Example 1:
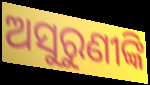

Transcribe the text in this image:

ଅସୁରୁଣୀଙ୍କି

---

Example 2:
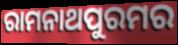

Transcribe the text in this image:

ରାମନାଥପୁରମର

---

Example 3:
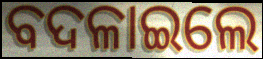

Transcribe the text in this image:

ବଦଳାଇଲେ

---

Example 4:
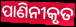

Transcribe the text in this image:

ପାଣିନୀକୃତ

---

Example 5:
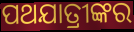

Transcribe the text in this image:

ପଥଯାତ୍ରୀଙ୍କର